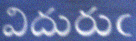
విదురుఁ